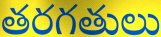
తరగతులు